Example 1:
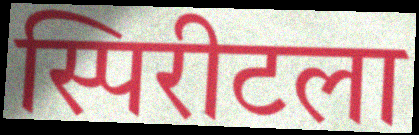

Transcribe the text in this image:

स्पिरीटला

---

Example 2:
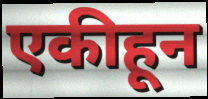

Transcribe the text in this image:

एकीहून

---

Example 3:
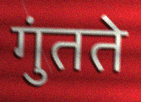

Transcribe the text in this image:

गुंतते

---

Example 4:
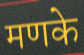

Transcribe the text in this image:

मणके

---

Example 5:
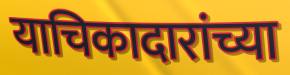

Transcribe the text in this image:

याचिकादारांच्या